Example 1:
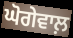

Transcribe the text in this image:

ਘੋਗੇਵਾਲ਼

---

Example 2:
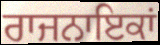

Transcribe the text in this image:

ਰਾਜਨਾਇਕਾਂ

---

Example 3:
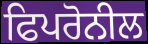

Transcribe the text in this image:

ਫਿਪਰੋਨੀਲ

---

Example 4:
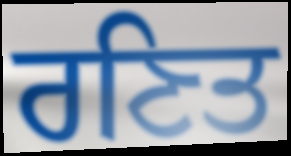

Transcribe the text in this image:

ਰਣਿਤ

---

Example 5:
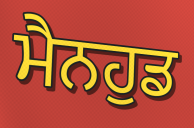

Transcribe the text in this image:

ਮੈਨਹੁਡ